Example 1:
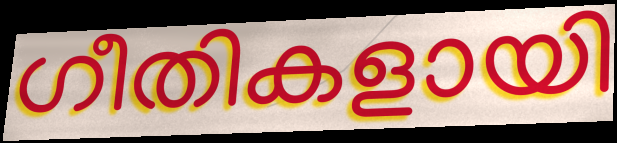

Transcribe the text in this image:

ഗീതികളായി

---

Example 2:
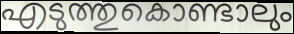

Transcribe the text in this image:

എടുത്തുകൊണ്ടാലും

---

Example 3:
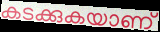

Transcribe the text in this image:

കടക്കുകയാണ്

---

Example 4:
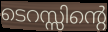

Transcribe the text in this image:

ടെറസ്സിന്റെ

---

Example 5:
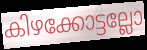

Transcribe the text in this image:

കിഴക്കോട്ടല്ലോ